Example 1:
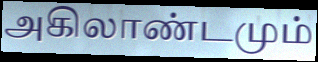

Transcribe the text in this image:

அகிலாண்டமும்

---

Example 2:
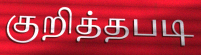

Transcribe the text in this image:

குறித்தபடி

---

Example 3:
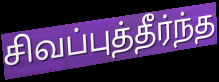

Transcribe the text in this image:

சிவப்புத்தீர்ந்த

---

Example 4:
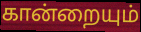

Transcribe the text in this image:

கான்றையும்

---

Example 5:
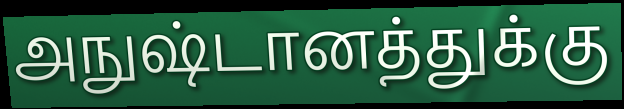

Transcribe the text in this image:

அநுஷ்டானத்துக்கு